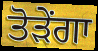
ਤੋੜੇਂਗਾ